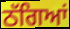
ਠੱਗਿਆਂ